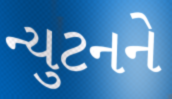
ન્યુટનને